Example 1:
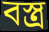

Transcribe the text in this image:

বস্ত্র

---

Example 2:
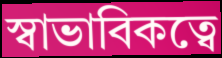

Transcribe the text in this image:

স্বাভাবিকত্বে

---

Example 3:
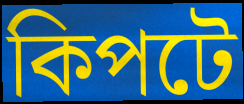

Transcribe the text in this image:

কিপটে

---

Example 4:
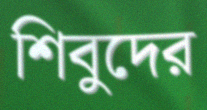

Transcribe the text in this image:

শিবুদের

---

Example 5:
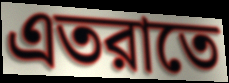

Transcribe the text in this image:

এতরাতে